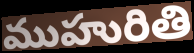
ముహురితి